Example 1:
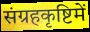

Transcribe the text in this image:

संग्रहकृष्टिमें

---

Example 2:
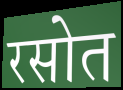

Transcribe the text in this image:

रसोत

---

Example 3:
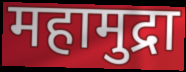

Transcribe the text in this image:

महामुद्रा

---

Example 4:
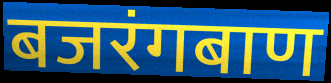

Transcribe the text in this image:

बजरंगबाण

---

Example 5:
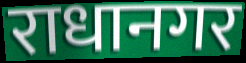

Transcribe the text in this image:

राधानगर